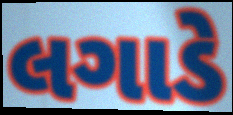
લગાડે